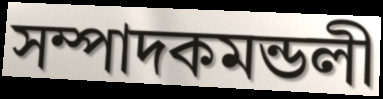
সম্পাদকমন্ডলী